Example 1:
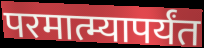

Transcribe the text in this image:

परमात्म्यापर्यंत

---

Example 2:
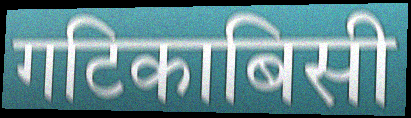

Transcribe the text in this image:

गटिकाबिसी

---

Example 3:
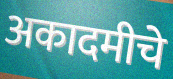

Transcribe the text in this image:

अकादमीचे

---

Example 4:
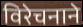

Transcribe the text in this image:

विरेचनाने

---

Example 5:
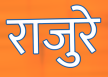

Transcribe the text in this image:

राजुरे